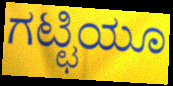
ಗಟ್ಟಿಯೂ